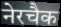
नेरचैक